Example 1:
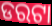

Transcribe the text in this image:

ଡରଟା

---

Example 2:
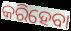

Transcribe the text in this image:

କରିହେବା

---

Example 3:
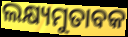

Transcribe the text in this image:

ଲକ୍ଷ୍ୟମୁତାବକ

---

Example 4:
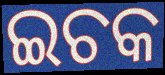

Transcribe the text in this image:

ଇଚକ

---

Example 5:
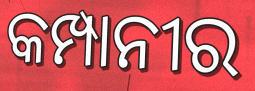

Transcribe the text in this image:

କମ୍ପାନୀର